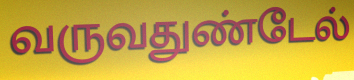
வருவதுண்டேல்